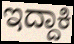
ಇದ್ದಾಕಿ